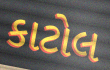
કાટોલ